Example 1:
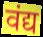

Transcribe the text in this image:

वंद्य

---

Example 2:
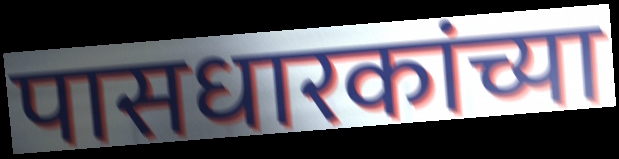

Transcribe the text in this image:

पासधारकांच्या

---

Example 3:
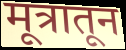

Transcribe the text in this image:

मूत्रातून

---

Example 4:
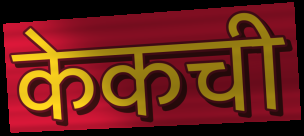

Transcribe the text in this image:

केकची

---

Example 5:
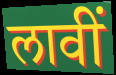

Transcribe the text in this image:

लावीं